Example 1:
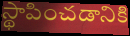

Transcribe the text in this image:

స్థాపించడానికి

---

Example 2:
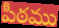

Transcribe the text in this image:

పీఠము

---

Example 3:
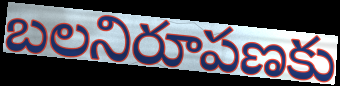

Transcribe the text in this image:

బలనిరూపణకు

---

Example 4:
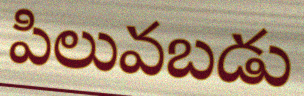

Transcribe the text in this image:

పిలువబడు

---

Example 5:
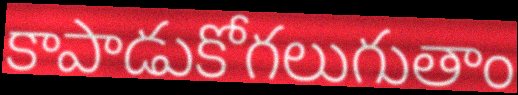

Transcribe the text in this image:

కాపాడుకోగలుగుతాం